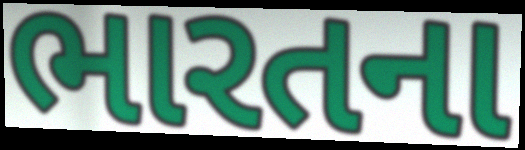
ભારતના